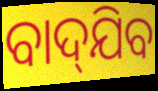
ବାଦ୍‌ଯିବ